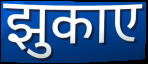
झुकाए